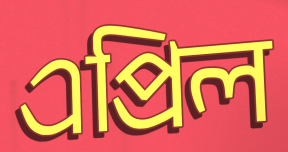
এপ্রিল